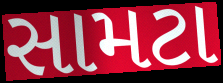
સામટા